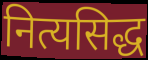
नित्यसिद्ध